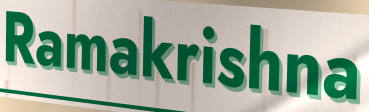
Ramakrishna